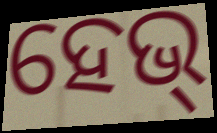
ହେଭ୍